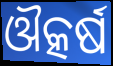
ଔତ୍କର୍ଷ